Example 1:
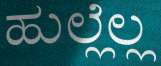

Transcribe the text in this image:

ಹುಲ್ಲೆಲ್ಲ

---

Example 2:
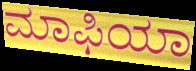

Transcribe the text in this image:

ಮಾಫಿಯಾ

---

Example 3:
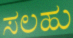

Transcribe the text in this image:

ಸಲಹು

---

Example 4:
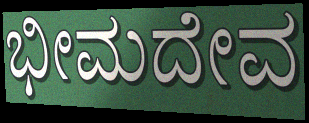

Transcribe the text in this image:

ಭೀಮದೇವ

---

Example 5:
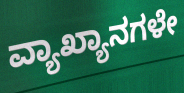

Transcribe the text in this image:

ವ್ಯಾಖ್ಯಾನಗಳೇ